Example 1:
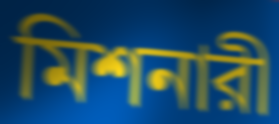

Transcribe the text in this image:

মিশনারী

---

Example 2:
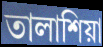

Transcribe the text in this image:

তালাশিয়া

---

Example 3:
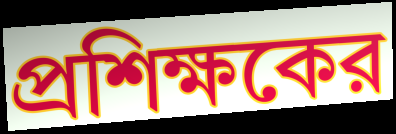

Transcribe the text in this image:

প্রশিক্ষকের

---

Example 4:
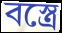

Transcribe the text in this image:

বস্ত্রে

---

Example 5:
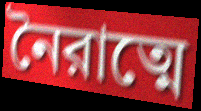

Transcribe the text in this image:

নৈরাত্মে